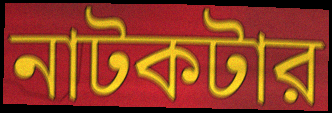
নাটকটার